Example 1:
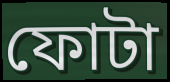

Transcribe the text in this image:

ফোটা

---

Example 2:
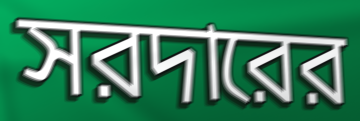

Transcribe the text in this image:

সরদারের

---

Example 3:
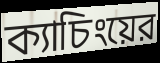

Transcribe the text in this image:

ক্যাচিংয়ের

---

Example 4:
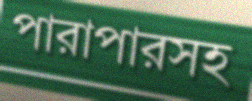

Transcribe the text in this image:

পারাপারসহ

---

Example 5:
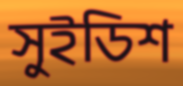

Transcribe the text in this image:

সুইডিশ